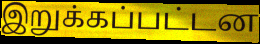
இறுக்கப்பட்டன